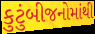
કુટુંબીજનોમાંથી